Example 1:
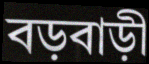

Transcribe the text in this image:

বড়বাড়ী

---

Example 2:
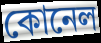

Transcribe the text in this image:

কোনেল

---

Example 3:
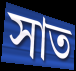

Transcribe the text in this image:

সাত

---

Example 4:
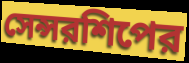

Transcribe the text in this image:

সেন্সরশিপের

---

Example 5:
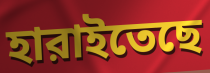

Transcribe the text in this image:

হারাইতেছে